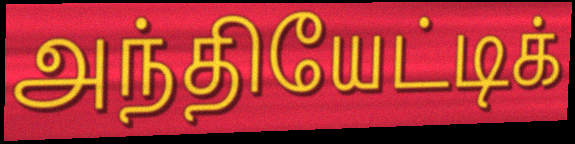
அந்தியேட்டிக்